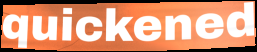
quickened